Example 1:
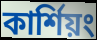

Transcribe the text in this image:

কার্শিয়ং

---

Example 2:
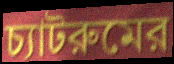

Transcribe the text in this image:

চ্যাটরুমের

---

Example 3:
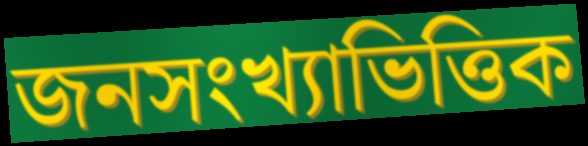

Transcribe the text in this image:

জনসংখ্যাভিত্তিক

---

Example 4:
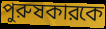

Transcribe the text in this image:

পুরুষকারকে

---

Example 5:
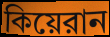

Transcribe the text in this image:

কিয়েরান